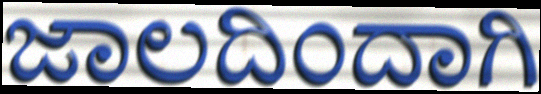
ಜಾಲದಿಂದಾಗಿ